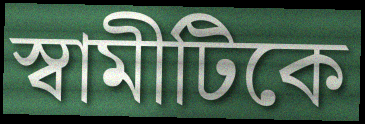
স্বামীটিকে